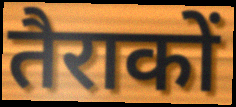
तैराकों